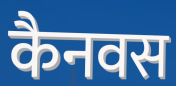
कैनवस